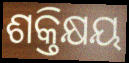
ଶକ୍ତିକ୍ଷୟ